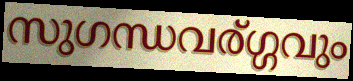
സുഗന്ധവര്ഗ്ഗവും